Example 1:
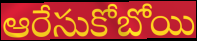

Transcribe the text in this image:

ఆరేసుకోబోయి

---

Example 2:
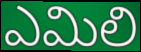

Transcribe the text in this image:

ఎమిలి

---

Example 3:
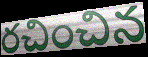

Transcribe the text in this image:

రచించిన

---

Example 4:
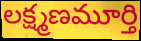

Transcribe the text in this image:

లక్ష్మణమూర్తి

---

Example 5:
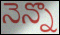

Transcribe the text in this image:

నెన్నొ